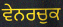
ਵੇਨਰਚੁਕ